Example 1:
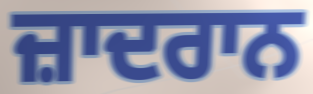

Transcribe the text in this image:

ਜ਼ਾਦਰਾਨ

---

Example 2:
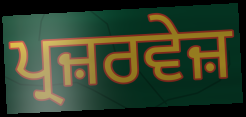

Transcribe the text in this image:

ਪ੍ਰਜ਼ਰਵੇਜ਼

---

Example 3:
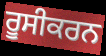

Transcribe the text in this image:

ਰੂਸੀਕਰਨ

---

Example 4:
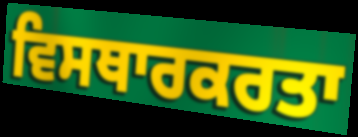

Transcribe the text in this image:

ਵਿਸਥਾਰਕਰਤਾ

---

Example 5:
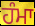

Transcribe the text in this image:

ਹੰਮਾ